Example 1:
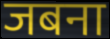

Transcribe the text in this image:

जबना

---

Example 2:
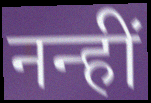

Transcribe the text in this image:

नन्हीं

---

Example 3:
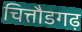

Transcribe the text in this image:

चित्तौडगढ़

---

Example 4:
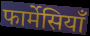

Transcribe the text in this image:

फार्मेसियाँ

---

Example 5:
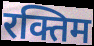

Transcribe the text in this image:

रक्तिम